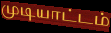
முடியாட்டம்